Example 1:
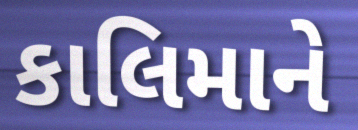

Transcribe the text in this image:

કાલિમાને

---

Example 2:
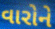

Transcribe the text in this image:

વારોને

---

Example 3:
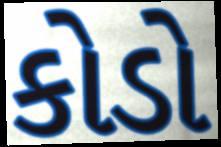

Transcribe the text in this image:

કોડો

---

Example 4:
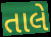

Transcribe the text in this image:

તાલે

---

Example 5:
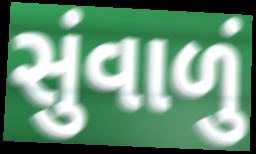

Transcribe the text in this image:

સુંવાળું